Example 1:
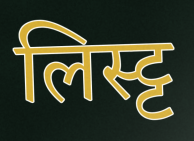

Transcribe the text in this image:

लिस्ट्ट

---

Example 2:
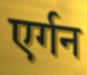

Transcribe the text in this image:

एर्गन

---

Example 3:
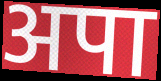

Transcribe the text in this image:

अपा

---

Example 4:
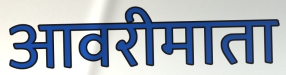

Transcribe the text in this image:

आवरीमाता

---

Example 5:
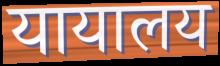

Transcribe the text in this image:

यायालय